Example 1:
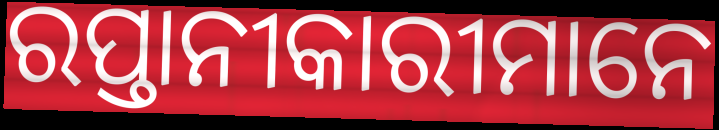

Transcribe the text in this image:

ରପ୍ତାନୀକାରୀମାନେ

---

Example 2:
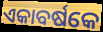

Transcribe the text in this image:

ଏକାବର୍ଷକେ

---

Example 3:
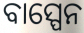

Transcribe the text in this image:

ବାସ୍ପେନ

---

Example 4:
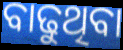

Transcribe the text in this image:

ବାଢୁଥିବା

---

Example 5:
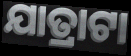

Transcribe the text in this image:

ଯାତ୍ରାଟା